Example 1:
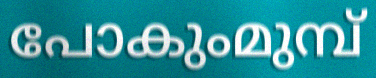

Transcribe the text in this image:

പോകുംമുമ്പ്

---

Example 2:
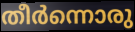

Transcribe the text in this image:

തീർന്നൊരു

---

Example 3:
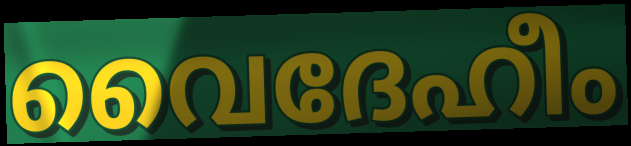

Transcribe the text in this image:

വൈദേഹീം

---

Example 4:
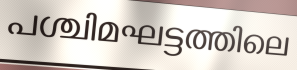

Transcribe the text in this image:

പശ്ചിമഘട്ടത്തിലെ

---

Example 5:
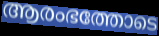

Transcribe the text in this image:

ആരംഭത്തോടെ